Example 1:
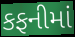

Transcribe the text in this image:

કફનીમાં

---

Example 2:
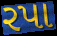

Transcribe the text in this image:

રપા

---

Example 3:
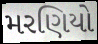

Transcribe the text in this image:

મરણિયો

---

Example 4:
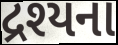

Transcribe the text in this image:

દ્રશ્યના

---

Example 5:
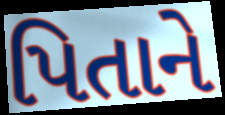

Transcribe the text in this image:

પિતાને